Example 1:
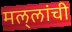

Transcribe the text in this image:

मल्लांची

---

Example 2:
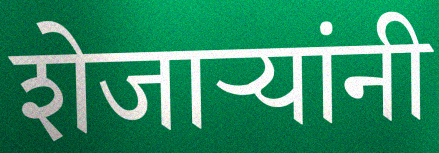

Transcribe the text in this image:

शेजाऱ्यांनी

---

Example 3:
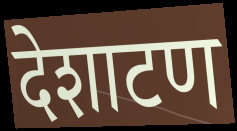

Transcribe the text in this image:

देशाटण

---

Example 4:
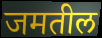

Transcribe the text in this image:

जमतील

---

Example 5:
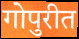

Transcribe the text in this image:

गोपुरीत